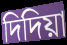
দিদিয়া